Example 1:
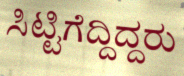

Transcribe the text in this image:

ಸಿಟ್ಟಿಗೆದ್ದಿದ್ದರು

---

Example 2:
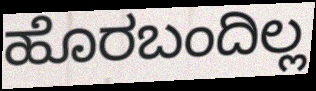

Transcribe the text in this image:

ಹೊರಬಂದಿಲ್ಲ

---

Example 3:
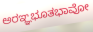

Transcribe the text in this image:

ಅರಞ್ಞಭೂತಭಾವೋ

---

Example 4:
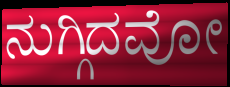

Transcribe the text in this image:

ನುಗ್ಗಿದವೋ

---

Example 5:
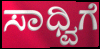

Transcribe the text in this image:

ಸಾಧ್ವಿಗೆ